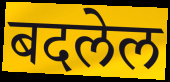
बदलेल